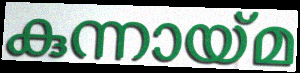
കുന്നായ്മ